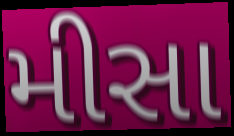
મીસા